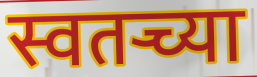
स्वतर्‍च्या